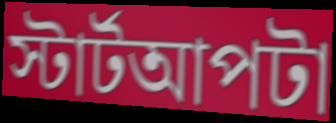
স্টার্টআপটা